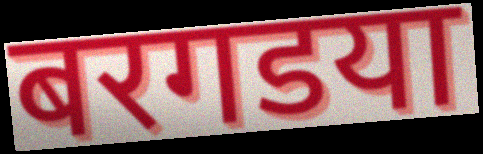
बरगडया